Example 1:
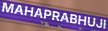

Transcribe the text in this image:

MAHAPRABHUJI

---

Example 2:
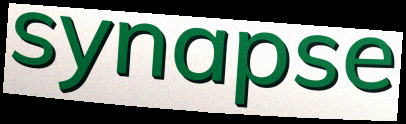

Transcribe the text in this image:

synapse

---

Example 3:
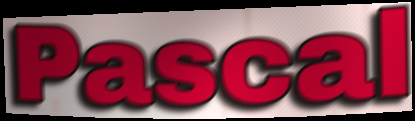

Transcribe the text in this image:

Pascal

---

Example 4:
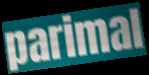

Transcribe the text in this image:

parimal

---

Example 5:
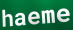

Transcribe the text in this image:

haeme